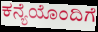
ಕನ್ಯೆಯೊಂದಿಗೆ